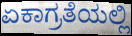
ಏಕಾಗ್ರತೆಯಲ್ಲಿ